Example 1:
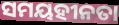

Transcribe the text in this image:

ସମୟହୀନତା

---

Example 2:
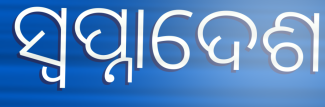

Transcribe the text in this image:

ସ୍ବପ୍ନାଦେଶ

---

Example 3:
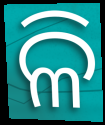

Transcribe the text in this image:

ଳି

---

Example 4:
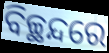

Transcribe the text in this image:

ବିଚ୍ଛନ୍ଦରେ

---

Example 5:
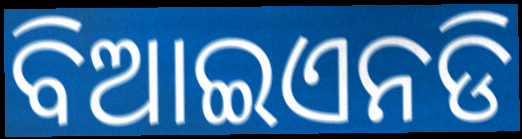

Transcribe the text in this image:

ବିଆଇଏନଡି